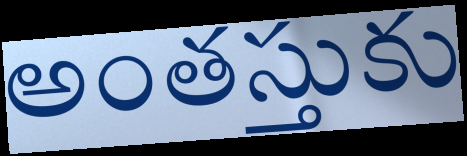
అంతస్తుకు